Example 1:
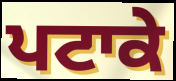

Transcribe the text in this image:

ਪਟਾਕੇ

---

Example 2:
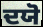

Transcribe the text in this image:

ਦਯੋ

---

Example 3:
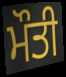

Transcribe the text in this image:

ਮੌਤੀ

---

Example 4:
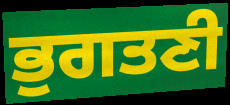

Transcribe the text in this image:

ਭੁਗਤਣੀ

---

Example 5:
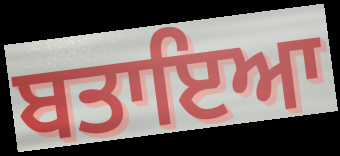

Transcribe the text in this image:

ਬਤਾਇਆ